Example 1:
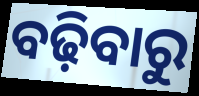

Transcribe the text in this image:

ବଢ଼ିବାରୁ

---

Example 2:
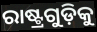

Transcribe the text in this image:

ରାଷ୍ଟ୍ରଗୁଡ଼ିକୁ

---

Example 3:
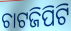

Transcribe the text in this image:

ଚାଟଜିପିଟି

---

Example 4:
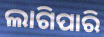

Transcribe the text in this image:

ଲାଗିପାରି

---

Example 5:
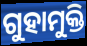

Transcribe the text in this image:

ଗୁହାମୁକ୍ତି